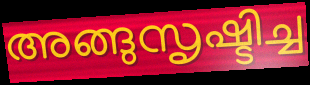
അങ്ങുസൃഷ്ടിച്ച